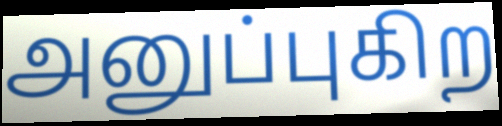
அனுப்புகிற